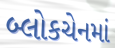
બ્લોકચેનમાં